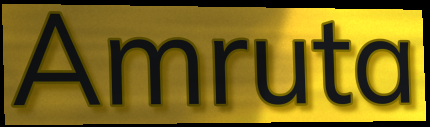
Amruta